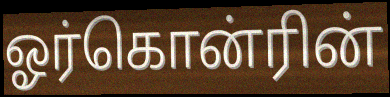
ஓர்கொன்ரின்